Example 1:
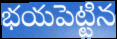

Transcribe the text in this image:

భయపెట్టిన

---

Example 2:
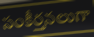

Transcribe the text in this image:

సంకీర్తనలుగా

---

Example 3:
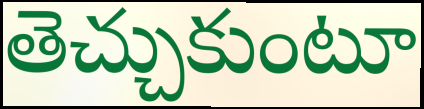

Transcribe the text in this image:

తెచ్చుకుంటూ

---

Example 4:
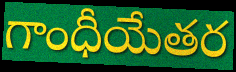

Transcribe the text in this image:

గాంధీయేతర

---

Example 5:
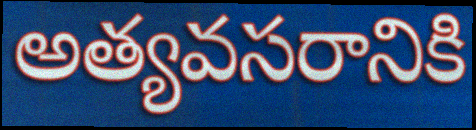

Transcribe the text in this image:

అత్యవసరానికి